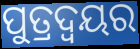
ପୁତ୍ରଦ୍ୱୟର